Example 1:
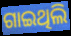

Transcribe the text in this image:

ଗାଇଥିଲି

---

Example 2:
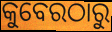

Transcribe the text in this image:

କୁବେରଠାରୁ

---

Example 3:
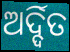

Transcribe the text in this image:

ଅର୍ଦ୍ଦିତ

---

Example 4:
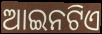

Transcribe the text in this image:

ଆଇନଟିଏ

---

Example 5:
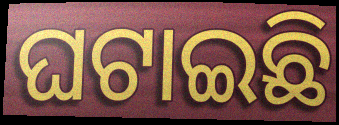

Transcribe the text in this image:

ଘଟାଇଛି